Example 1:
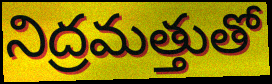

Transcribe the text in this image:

నిద్రమత్తుతో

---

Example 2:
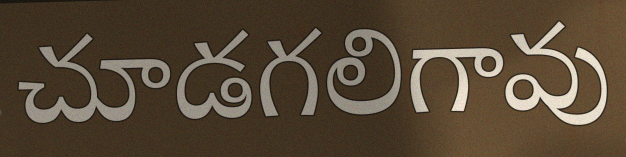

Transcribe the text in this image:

చూడగలిగావు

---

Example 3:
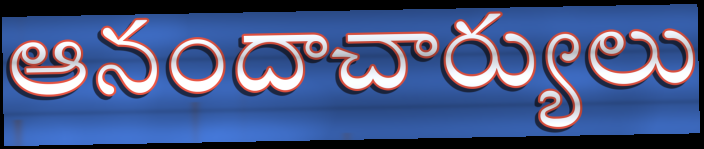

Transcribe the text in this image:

ఆనందాచార్యులు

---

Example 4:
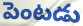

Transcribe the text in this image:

పెంటడు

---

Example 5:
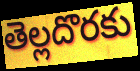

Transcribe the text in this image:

తెల్లదొరకు